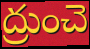
ద్రుంచె